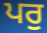
ਪਰੁ